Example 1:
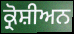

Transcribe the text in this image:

ਕ੍ਰੋਸ਼ੀਅਨ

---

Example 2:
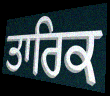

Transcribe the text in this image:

ਤਾਰਿਕ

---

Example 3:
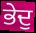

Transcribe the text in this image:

ਭੇਦੁ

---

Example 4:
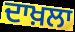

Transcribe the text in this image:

ਦਾਖ਼ਲਾ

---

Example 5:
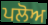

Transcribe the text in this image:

ਪਲੋਅ